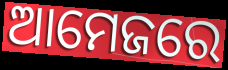
ଆମେଜରେ